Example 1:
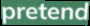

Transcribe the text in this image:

pretend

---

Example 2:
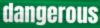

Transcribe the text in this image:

dangerous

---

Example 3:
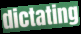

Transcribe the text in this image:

dictating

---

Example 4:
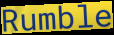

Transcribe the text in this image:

Rumble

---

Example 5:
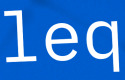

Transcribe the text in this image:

leq